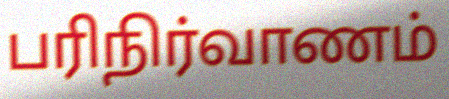
பரிநிர்வாணம்